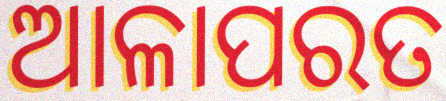
ଆଳାପରତ